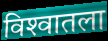
विश्‍वातला